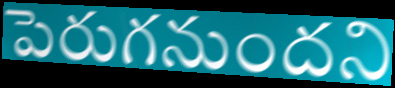
పెరుగనుందని